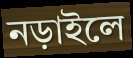
নড়াইলে